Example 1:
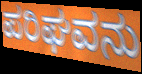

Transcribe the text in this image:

ಪರಿಘವನು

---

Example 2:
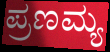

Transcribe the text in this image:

ಪ್ರಣಮ್ಯ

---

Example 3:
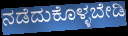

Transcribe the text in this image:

ನಡೆದುಕೊಳ್ಳಬೇಡಿ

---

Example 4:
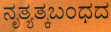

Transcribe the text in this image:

ನೃತ್ಯತ್ಕಬಂಧದ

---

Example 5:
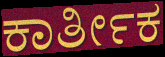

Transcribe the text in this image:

ಕಾರ್ತೀಕ